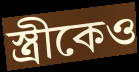
স্ত্রীকেও